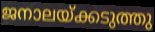
ജനാലയ്ക്കടുത്തു